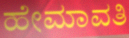
ಹೇಮಾವತಿ